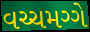
વચ્ચમગ્ગે